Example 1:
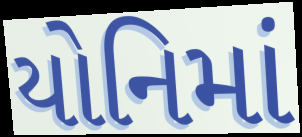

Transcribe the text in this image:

યોનિમાં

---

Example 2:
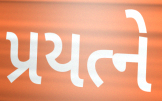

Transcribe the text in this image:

પ્રયત્ને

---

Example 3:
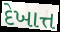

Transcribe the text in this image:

દેખાત્ત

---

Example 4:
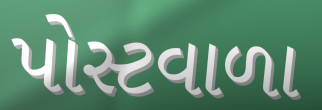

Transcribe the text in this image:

પોસ્ટવાળા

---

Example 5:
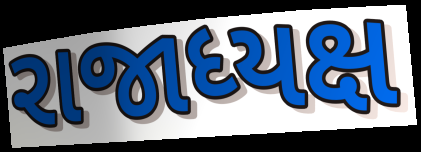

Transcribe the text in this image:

રાજાધ્યક્ષ